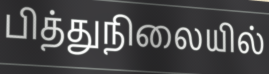
பித்துநிலையில்